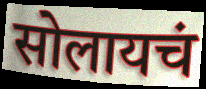
सोलायचं